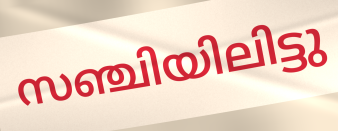
സഞ്ചിയിലിട്ടു